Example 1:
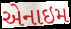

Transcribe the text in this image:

એનાઇમ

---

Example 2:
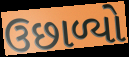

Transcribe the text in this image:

ઉછાળ્યો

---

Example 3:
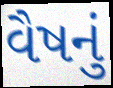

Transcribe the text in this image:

વૈષનું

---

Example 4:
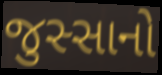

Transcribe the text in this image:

જુસ્સાનો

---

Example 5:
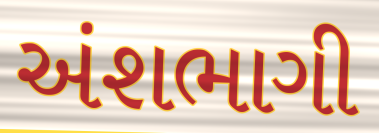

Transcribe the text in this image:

અંશભાગી